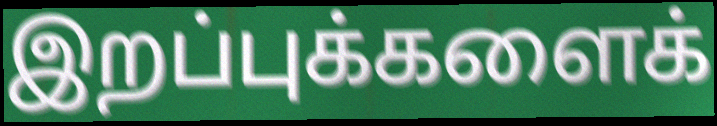
இறப்புக்களைக்